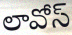
లావోస్